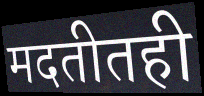
मदतीतही